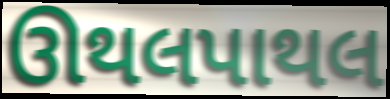
ઊથલપાથલ